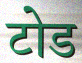
टोड